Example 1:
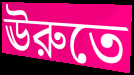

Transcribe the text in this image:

ঊরুতে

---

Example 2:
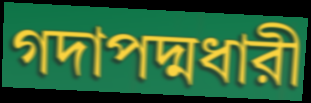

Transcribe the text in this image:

গদাপদ্মধারী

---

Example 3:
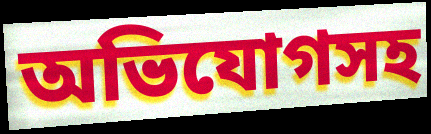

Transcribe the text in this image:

অভিযোগসহ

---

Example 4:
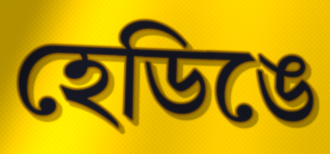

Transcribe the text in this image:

হেডিঙে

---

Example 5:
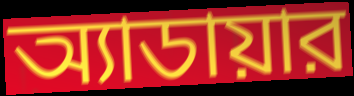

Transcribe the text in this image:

অ্যাডায়ার